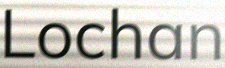
Lochan